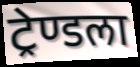
ट्रेण्डला